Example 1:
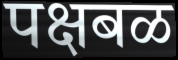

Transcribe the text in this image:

पक्षबळ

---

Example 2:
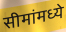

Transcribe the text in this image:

सीमांमध्ये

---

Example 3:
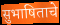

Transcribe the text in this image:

सुभाषिताचे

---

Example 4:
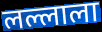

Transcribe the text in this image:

लल्लाला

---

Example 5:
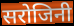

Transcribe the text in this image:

सरोजिनी